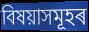
বিষয়াসমূহৰ